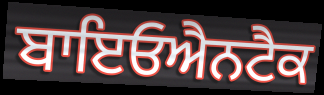
ਬਾਇਓਐਨਟੈਕ